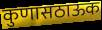
कुणासठाऊक